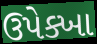
ઉપેક્ખા